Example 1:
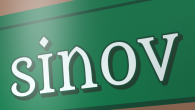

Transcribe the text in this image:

sinov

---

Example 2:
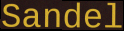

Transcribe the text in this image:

Sandel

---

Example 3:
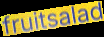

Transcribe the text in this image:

fruitsalad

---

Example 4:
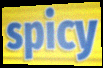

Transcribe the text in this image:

spicy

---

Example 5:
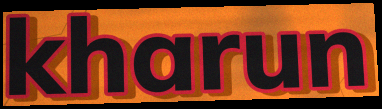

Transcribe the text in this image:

kharun